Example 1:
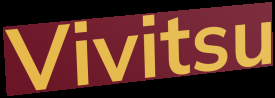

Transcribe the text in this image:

Vivitsu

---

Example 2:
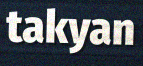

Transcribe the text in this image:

takyan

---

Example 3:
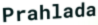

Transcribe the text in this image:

Prahlada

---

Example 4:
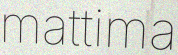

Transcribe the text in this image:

mattima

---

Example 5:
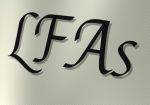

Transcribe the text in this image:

LFAs